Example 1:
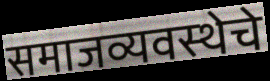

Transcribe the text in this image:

समाजव्यवस्थेचे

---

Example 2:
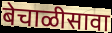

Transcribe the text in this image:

बेचाळीसावा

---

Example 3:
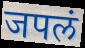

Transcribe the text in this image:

जपलं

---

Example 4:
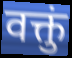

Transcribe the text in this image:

वक्तुं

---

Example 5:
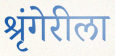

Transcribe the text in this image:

श्रृंगेरीला